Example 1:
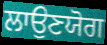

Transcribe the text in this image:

ਲਾਉਣਯੋਗ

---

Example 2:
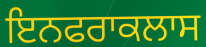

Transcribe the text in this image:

ਇਨਫਰਾਕਲਾਸ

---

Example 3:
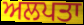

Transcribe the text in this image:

ਅਲਪਤਾ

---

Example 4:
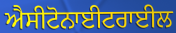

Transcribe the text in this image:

ਐਸੀਟੋਨਾਈਟਰਾਈਲ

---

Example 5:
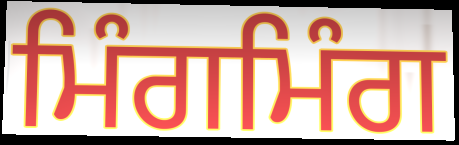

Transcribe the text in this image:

ਮਿੰਗਮਿੰਗ